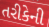
તરીકેની